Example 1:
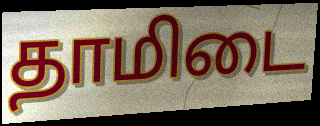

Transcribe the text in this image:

தாமிடை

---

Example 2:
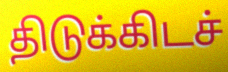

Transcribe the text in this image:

திடுக்கிடச்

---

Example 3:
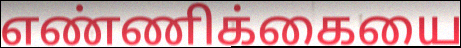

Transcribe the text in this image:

எண்ணிக்கையை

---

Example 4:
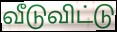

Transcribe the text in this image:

வீடுவிட்டு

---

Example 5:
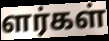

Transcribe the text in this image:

ளர்கள்